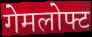
गेमलोफ्ट